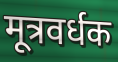
मूत्रवर्धक